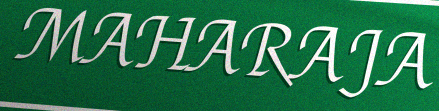
MAHARAJA